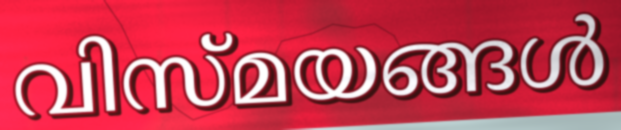
വിസ്മയങ്ങൾ